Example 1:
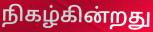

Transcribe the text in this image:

நிகழ்கின்றது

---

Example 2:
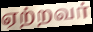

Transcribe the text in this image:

ஏற்றவர்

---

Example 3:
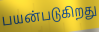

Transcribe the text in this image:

பயன்படுகிறது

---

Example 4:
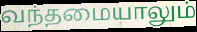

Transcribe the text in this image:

வந்தமையாலும்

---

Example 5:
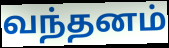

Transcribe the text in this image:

வந்தனம்